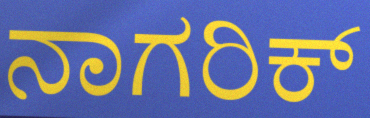
ನಾಗರಿಕ್